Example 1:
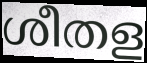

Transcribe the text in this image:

ശീതള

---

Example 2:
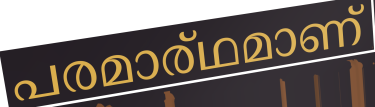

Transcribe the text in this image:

പരമാര്ഥമാണ്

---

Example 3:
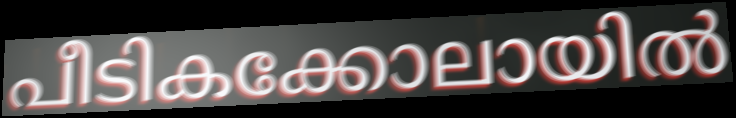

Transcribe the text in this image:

പീടികക്കോലായിൽ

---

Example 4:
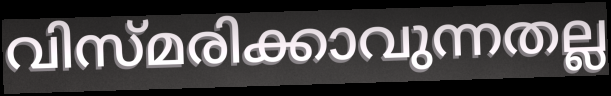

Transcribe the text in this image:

വിസ്മരിക്കാവുന്നതല്ല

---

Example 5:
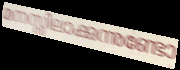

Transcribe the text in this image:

മനസ്സിലാക്കുന്നുണ്ടോ